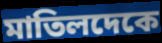
মাতিলদেকে